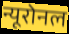
न्यूरोनल